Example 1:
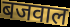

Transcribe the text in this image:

बजवाल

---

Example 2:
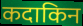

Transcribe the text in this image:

कदाकिन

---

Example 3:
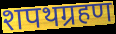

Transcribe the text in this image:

शपथग्रहण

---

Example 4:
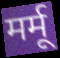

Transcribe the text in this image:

मर्मू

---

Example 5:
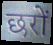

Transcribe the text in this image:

छरों